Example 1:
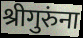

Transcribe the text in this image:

श्रीगुरुंना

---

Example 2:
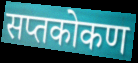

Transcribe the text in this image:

सप्तकोकण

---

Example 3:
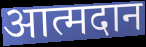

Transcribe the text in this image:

आत्मदान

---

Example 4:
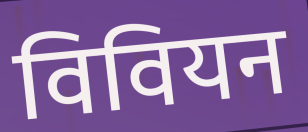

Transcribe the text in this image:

विवियन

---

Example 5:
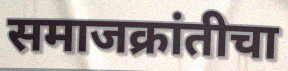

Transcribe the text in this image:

समाजक्रांतीचा